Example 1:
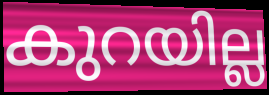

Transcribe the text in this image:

കുറയില്ല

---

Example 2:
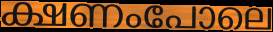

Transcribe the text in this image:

ക്ഷണംപോലെ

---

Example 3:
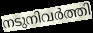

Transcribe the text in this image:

നടുനിവർത്തി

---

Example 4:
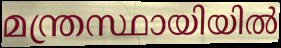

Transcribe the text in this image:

മന്ത്രസ്ഥായിയിൽ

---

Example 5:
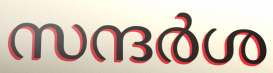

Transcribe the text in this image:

സന്ദർശ